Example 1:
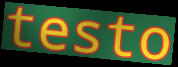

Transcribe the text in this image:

testo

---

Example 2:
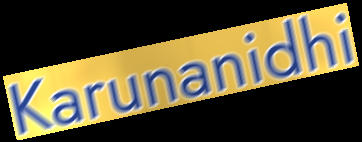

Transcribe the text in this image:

Karunanidhi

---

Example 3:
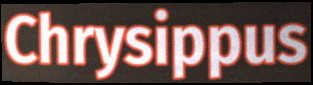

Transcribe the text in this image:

Chrysippus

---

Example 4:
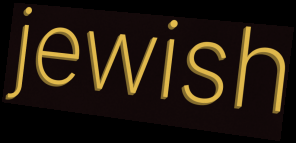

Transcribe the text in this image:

jewish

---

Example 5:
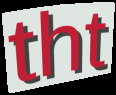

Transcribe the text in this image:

tht